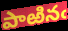
పాఱినఁ